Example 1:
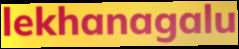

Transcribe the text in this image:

lekhanagalu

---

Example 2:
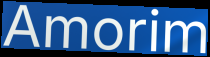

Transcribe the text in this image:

Amorim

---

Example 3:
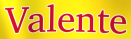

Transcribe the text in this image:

Valente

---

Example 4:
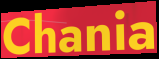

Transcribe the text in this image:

Chania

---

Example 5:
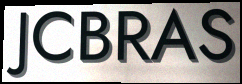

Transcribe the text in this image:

JCBRAS